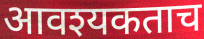
आवश्यकताच